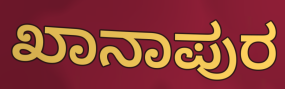
ಖಾನಾಪುರ